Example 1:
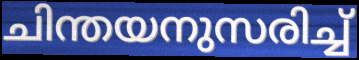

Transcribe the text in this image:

ചിന്തയനുസരിച്ച്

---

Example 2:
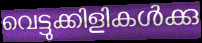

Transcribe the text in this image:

വെട്ടുക്കിളികൾക്കു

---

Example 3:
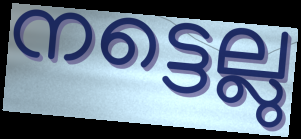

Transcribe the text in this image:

നട്ടെല്ലു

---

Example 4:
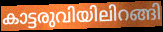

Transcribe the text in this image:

കാട്ടരുവിയിലിറങ്ങി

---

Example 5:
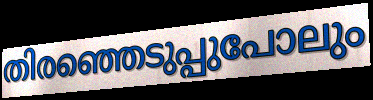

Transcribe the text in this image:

തിരഞ്ഞെടുപ്പുപോലും